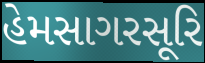
હેમસાગરસૂરિ